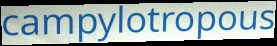
campylotropous